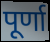
पूर्णा